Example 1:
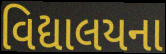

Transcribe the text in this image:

વિદ્યાલયના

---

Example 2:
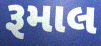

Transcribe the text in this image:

રૂમાલ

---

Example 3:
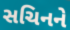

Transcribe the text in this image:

સચિનને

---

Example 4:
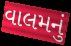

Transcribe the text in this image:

વાલમનું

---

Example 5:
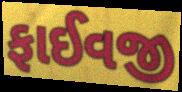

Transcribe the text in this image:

ફાઈવજી